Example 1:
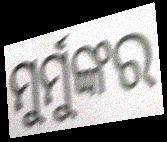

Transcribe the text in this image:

ମୁର୍ମୁଙ୍କର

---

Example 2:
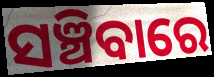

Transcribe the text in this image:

ସଞ୍ଚିବାରେ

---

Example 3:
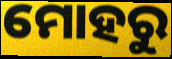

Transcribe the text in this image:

ମୋହରୁ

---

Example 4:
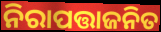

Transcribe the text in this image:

ନିରାପତ୍ତାଜନିତ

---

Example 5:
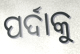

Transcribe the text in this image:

ପର୍ଦାକୁ